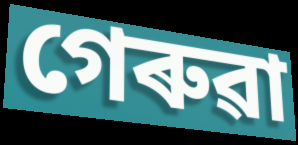
গেৰুৱা